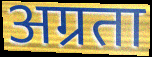
अग्रता